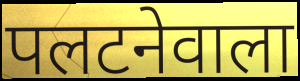
पलटनेवाला